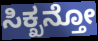
ಸಿಕ್ಖನ್ತೋ